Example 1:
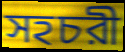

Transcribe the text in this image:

সহচরী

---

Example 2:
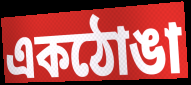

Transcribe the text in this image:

একঠোঙা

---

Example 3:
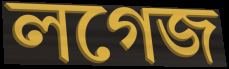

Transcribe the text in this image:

লগেজ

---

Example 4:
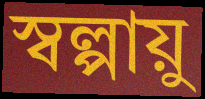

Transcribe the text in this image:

স্বল্পায়ু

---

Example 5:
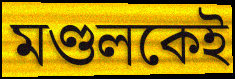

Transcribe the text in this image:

মণ্ডলকেই